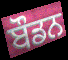
ਬੌਡਨ